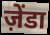
ज़ेंडा